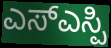
ಎಸ್ಎಸ್ಪಿ